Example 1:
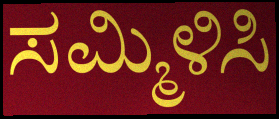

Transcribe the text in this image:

ಸಮ್ಮಿಳಿಸಿ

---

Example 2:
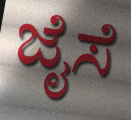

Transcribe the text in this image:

ಜೈಸೆ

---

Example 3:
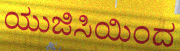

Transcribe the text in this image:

ಯುಜಿಸಿಯಿಂದ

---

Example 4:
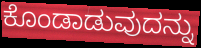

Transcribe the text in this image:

ಕೊಂಡಾಡುವುದನ್ನು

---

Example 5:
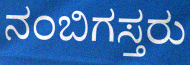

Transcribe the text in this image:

ನಂಬಿಗಸ್ತರು